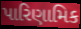
પારિણામિક